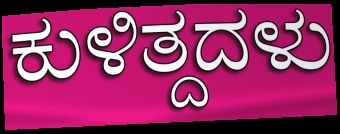
ಕುಳಿತ್ದದಳು